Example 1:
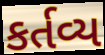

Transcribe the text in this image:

કર્તવ્ય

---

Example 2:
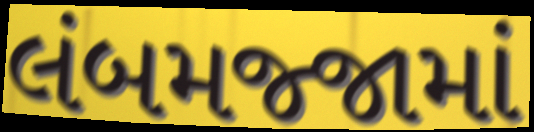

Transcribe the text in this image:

લંબમજ્જામાં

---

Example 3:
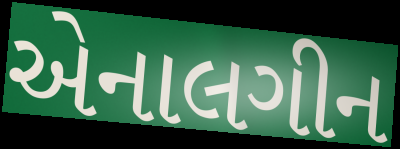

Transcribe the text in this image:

એનાલગીન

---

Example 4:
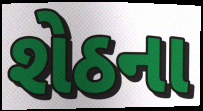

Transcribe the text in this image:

શેઠના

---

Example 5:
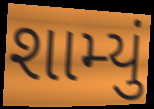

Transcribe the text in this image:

શામ્યું